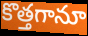
కొత్తగానూ